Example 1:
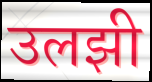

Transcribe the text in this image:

उलझी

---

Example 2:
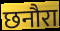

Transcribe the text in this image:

छनौरा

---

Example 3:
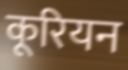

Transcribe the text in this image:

कूरियन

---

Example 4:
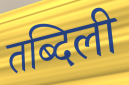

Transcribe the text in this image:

तब्दिली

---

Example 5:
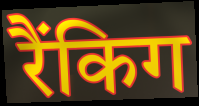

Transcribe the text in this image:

रैंकिग